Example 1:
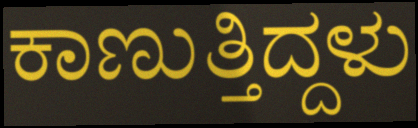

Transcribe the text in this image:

ಕಾಣುತ್ತಿದ್ದಳು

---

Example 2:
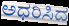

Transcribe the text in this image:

ಅಧರಿಸಿದ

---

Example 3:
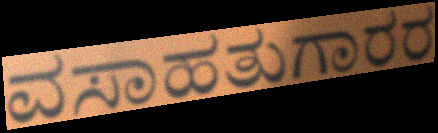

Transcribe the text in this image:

ವಸಾಹತುಗಾರರ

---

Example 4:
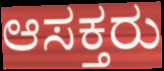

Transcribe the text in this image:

ಆಸಕ್ತರು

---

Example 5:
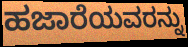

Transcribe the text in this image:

ಹಜಾರೆಯವರನ್ನು